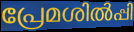
പ്രേമശിൽപ്പി